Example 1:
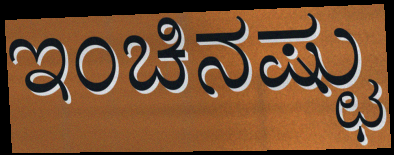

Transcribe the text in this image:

ಇಂಚಿನಷ್ಟು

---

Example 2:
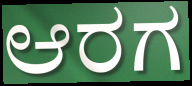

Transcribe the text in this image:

ಆರಗ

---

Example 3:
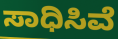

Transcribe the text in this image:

ಸಾಧಿಸಿವೆ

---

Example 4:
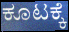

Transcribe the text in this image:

ಕೂಟಕ್ಕೆ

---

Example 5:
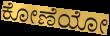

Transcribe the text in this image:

ಕೋಣೆಯೋ